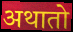
अथातो